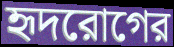
হৃদরোগের